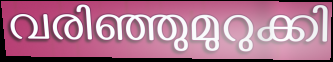
വരിഞ്ഞുമുറുക്കി